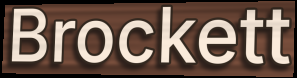
Brockett